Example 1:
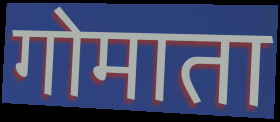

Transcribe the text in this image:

गोमाता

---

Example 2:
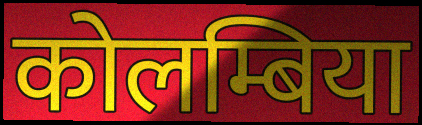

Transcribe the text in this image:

कोलम्बिया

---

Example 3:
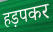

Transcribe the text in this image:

हड़पकर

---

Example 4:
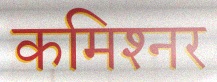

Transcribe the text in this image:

कमिश्‍नर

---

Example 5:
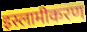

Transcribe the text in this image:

इस्लामीकरण